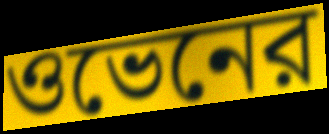
ওভেনের